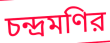
চন্দ্রমণির